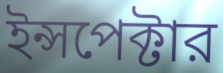
ইন্সপেক্টার